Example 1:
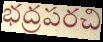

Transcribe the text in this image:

భద్రపరచి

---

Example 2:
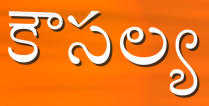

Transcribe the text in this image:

కౌసల్య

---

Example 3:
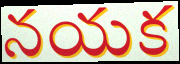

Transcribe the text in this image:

నయక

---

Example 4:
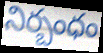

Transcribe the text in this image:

నిర్బంధం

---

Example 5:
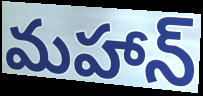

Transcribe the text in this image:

మహాన్